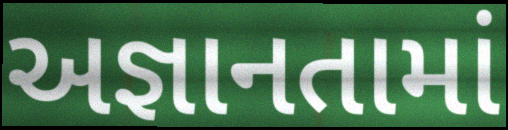
અજ્ઞાનતામાં